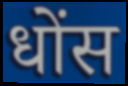
धोंस